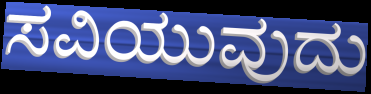
ಸವಿಯುವುದು